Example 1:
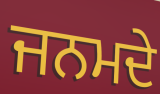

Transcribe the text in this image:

ਜਨਮਦੇ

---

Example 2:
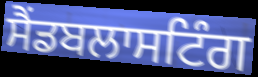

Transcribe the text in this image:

ਸੈਂਡਬਲਾਸਟਿੰਗ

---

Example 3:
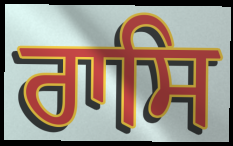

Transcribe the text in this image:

ਰਾਸਿ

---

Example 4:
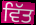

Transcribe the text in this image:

ਵਿੱਤ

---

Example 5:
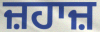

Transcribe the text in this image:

ਜ਼ਹਾਜ਼